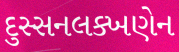
દુસ્સનલક્ખણેન